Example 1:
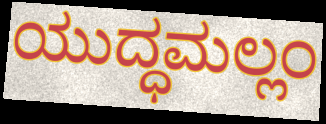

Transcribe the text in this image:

ಯುದ್ಧಮಲ್ಲಂ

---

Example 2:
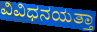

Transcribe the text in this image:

ವಿವಿಧನಯತ್ತಾ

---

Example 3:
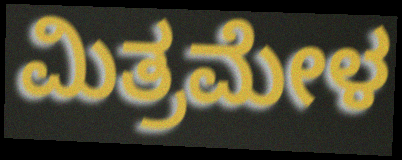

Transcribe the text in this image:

ಮಿತ್ರಮೇಳ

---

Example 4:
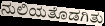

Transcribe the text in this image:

ನುಲಿಯತೊಡಗಿತು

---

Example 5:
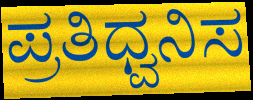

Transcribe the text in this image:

ಪ್ರತಿಧ್ವನಿಸ